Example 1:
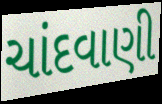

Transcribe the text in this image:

ચાંદવાણી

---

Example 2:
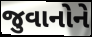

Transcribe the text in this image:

જુવાનોને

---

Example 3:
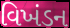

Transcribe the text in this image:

વિખંડન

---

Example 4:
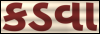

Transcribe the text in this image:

કડવા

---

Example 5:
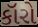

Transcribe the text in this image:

કૉરો